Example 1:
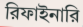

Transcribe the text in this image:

রিফাইনারি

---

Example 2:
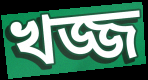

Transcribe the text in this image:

খজ্জ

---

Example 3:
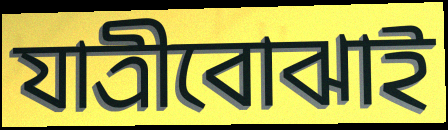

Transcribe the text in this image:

যাত্রীবোঝাই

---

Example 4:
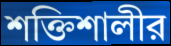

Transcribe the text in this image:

শক্তিশালীর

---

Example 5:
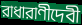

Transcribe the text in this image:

রাধারাণীদেবী